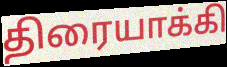
திரையாக்கி